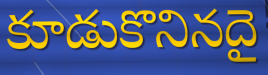
కూడుకొనినదై